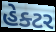
હેક્ટર